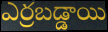
ఎర్రబడ్డాయి